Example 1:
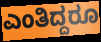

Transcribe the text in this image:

ಎಂತಿದ್ದರೂ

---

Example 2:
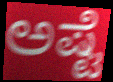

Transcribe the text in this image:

ಅಷ್ಟೆ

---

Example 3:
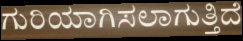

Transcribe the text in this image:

ಗುರಿಯಾಗಿಸಲಾಗುತ್ತಿದೆ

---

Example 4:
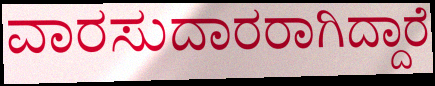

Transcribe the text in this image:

ವಾರಸುದಾರರಾಗಿದ್ದಾರೆ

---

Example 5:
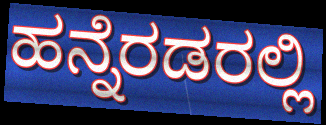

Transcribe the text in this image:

ಹನ್ನೆರಡರಲ್ಲಿ